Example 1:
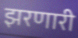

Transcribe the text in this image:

झरणारी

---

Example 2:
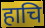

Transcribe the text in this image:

हाचि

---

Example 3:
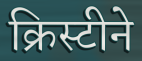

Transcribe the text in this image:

क्रिस्टीने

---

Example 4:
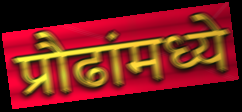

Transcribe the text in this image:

प्रौढांमध्ये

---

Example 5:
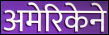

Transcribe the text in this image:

अमेरिकेने